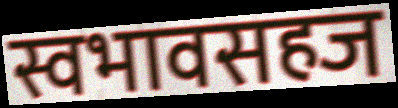
स्वभावसहज